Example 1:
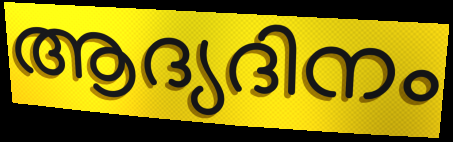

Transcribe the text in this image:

ആദ്യദിനം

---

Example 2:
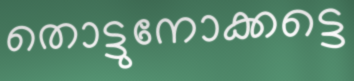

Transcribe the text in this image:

തൊട്ടുനോക്കട്ടെ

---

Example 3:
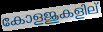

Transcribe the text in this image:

കോളജുകളില്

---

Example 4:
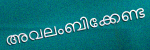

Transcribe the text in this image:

അവലംബിക്കേണ്ട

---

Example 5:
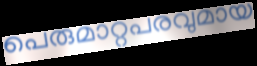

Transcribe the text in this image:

പെരുമാറ്റപരവുമായ